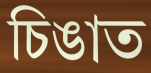
চিঙাত